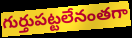
గుర్తుపట్టలేనంతగా